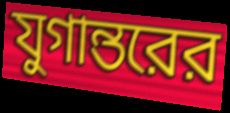
যুগান্তরের